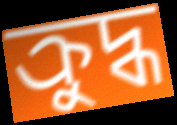
ক্ৰুদ্ধ